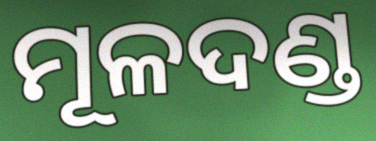
ମୂଳଦଣ୍ଡ